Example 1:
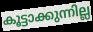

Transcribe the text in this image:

കൂട്ടാക്കുന്നില്ല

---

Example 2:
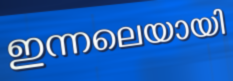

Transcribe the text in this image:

ഇന്നലെയായി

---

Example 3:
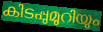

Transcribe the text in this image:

കിടപ്പുമുറിയും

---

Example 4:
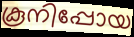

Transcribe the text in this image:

കൂനിപ്പോയ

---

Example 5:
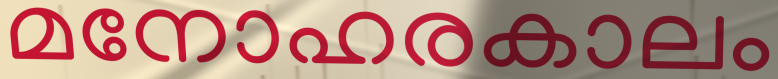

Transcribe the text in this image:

മനോഹരകാലം